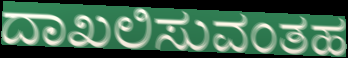
ದಾಖಲಿಸುವಂತಹ